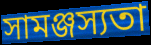
সামঞ্জস্যতা